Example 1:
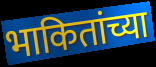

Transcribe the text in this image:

भाकितांच्या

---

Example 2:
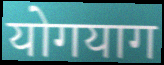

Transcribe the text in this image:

योगयाग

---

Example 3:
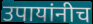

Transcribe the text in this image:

उपायांनीच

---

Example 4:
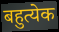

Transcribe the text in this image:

बहुत्येक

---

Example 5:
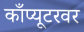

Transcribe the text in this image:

काँप्यूटरवर